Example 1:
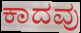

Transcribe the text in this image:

ಕಾದವು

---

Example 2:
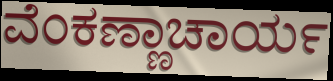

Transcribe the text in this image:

ವೆಂಕಣ್ಣಾಚಾರ್ಯ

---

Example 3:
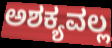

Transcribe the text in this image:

ಅಶಕ್ಯವಲ್ಲ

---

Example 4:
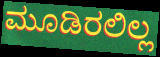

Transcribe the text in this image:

ಮೂಡಿರಲಿಲ್ಲ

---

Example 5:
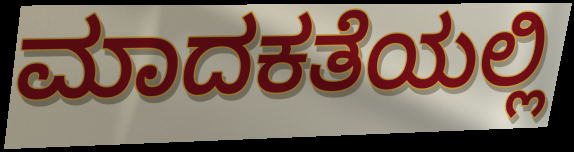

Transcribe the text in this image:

ಮಾದಕತೆಯಲ್ಲಿ